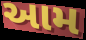
આમ